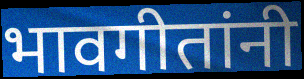
भावगीतांनी